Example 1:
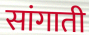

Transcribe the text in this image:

सांगाती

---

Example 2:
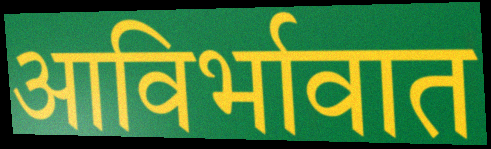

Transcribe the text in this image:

आविर्भावात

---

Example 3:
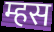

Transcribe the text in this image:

म्हस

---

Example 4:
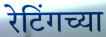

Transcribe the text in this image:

रेटिंगच्या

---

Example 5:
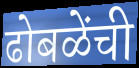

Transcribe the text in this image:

ढोबळेंची